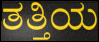
ತತ್ತಿಯ